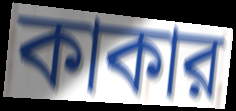
কাকার